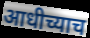
आधीच्याच